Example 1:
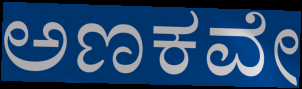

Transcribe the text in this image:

ಅಣಕವೇ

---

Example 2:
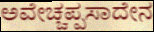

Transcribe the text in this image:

ಅವೇಚ್ಚಪ್ಪಸಾದೇನ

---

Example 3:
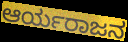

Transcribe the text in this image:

ಆರ್ಯರಾಜನ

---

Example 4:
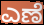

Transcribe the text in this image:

ಎಣೆ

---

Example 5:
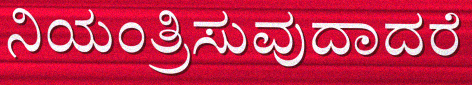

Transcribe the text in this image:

ನಿಯಂತ್ರಿಸುವುದಾದರೆ